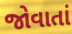
જોવાતાં